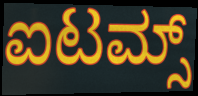
ಐಟಮ್ಸ್